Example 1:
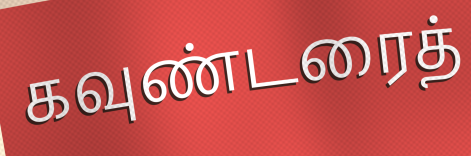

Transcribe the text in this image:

கவுண்டரைத்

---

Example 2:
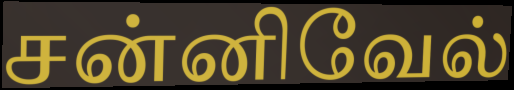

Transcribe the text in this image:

சன்னிவேல்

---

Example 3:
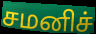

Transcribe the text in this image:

சமனிச்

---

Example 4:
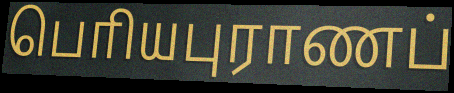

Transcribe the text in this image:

பெரியபுராணப்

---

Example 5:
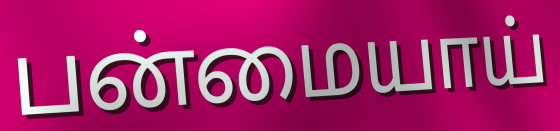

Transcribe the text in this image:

பன்மையாய்